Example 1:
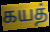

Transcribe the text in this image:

கயத்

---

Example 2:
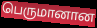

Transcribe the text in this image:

பெருமானான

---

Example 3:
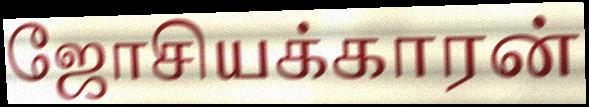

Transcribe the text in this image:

ஜோசியக்காரன்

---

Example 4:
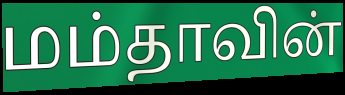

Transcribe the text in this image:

மம்தாவின்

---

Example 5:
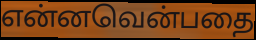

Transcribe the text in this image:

என்னவென்பதை